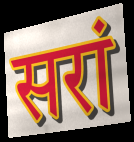
सरां